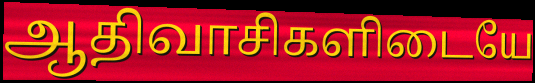
ஆதிவாசிகளிடையே